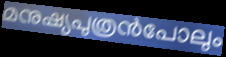
മനുഷ്യപുത്രൻപോലും